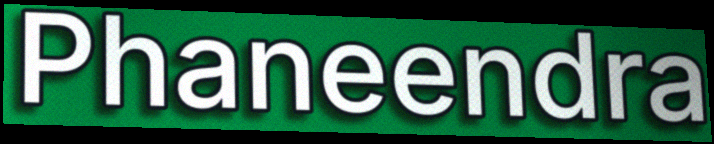
Phaneendra